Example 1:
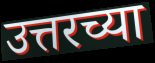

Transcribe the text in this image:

उत्तरच्या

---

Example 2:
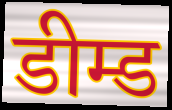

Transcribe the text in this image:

डीम्ड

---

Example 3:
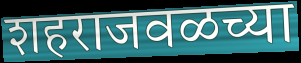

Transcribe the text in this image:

शहराजवळच्या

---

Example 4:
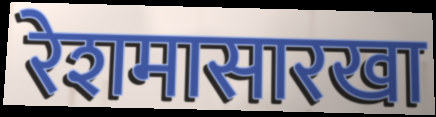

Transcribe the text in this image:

रेशमासारखा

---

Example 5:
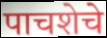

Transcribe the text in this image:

पाचशेचे